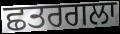
ਛਤਰਗਲਾ